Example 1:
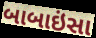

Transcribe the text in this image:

બાબાઇંસા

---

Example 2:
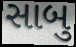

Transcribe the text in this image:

સાબુ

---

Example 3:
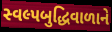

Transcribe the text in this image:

સ્વલ્પબુદ્ધિવાળાને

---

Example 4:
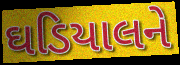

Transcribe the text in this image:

ઘડિયાલને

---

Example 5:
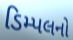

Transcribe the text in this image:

ડિમ્પલનો